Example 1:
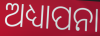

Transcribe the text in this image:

ଅଧ୍ୟାପନା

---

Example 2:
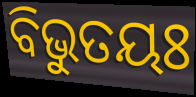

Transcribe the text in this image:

ବିଭୁତୟଃ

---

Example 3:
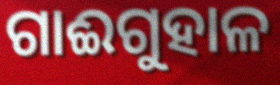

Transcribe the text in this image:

ଗାଈଗୁହାଳ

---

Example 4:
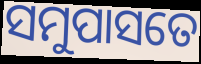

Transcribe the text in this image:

ସମୁପାସତେ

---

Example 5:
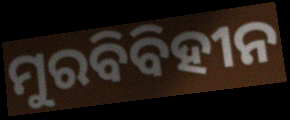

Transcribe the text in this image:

ମୁରବିବିହୀନ